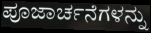
ಪೂಜಾರ್ಚನೆಗಳನ್ನು